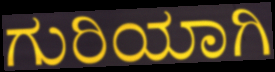
ಗುರಿಯಾಗಿ